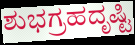
ಶುಭಗ್ರಹದೃಷ್ಟಿ